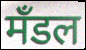
मँडल